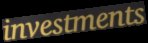
investments